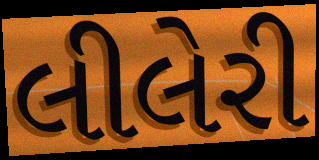
લીલેરી